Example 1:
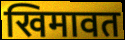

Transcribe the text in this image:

खिमावत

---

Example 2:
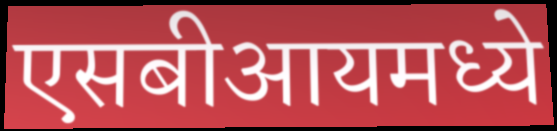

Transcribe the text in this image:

एसबीआयमध्ये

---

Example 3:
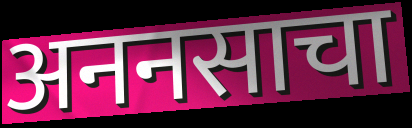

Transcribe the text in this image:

अननसाचा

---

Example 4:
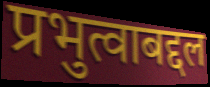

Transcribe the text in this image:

प्रभुत्वाबद्दल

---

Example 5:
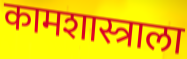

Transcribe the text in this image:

कामशास्त्राला